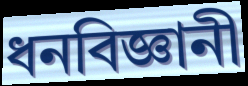
ধনবিজ্ঞানী